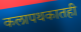
कलापथकातही